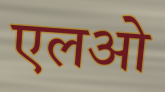
एलओ